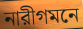
নারীগমনে